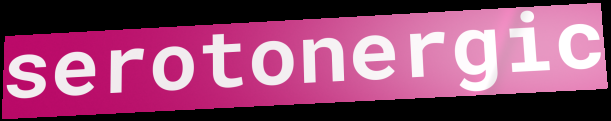
serotonergic